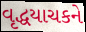
વૃદ્ધયાચકને